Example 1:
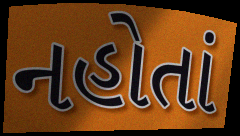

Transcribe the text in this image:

નહોતાં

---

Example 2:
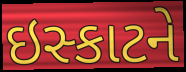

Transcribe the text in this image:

ઇસ્કાટને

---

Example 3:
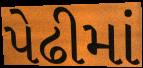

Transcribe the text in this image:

પેઢીમાં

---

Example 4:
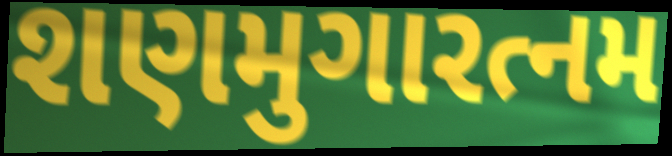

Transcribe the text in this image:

શણમુગારત્નમ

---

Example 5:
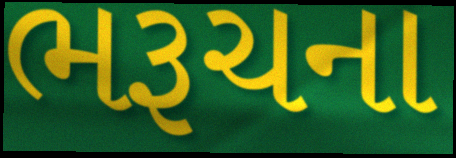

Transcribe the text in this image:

ભરૂચના